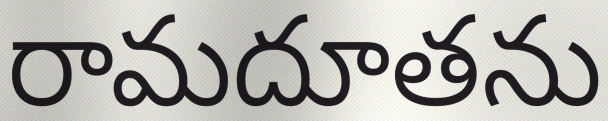
రామదూతను